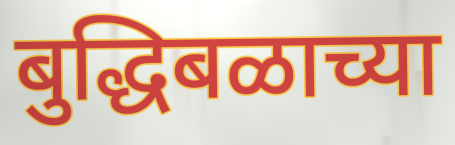
बुद्धिबळाच्या